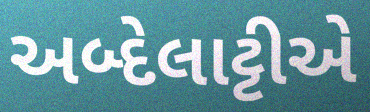
અબ્દેલાટ્ટીએ